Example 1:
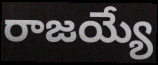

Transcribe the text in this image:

రాజయ్యే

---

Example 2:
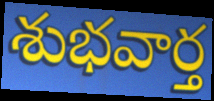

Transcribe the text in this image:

శుభవార్త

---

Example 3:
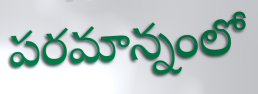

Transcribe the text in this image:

పరమాన్నంలో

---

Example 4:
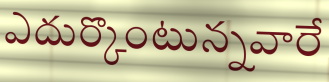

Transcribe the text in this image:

ఎదుర్కొంటున్నవారే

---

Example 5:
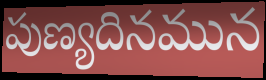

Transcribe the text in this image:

పుణ్యదినమున